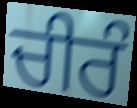
ਚੀਰੰ